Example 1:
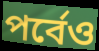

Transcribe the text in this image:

পর্বেও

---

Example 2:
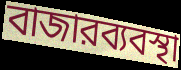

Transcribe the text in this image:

বাজারব্যবস্থা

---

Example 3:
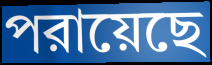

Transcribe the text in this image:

পরায়েছে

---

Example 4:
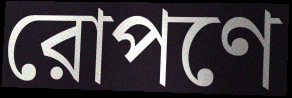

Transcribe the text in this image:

রোপণে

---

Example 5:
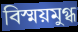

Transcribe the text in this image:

বিস্ময়মুগ্ধ